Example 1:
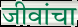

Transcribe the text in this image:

जीवांचा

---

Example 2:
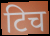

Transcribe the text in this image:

टिच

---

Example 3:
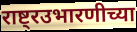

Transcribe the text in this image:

राष्ट्रउभारणीच्या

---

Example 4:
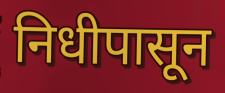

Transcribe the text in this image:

निधीपासून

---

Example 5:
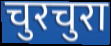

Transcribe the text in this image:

चुरचुरा